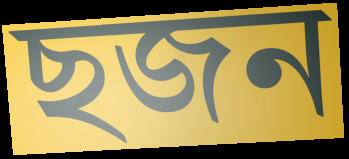
ছজন